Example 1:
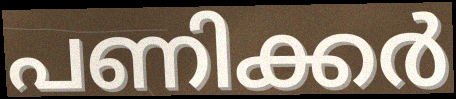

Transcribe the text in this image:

പണിക്കർ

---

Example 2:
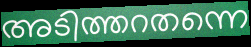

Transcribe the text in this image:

അടിത്തറതന്നെ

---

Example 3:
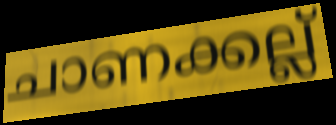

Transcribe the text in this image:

ചാണക്കല്ല്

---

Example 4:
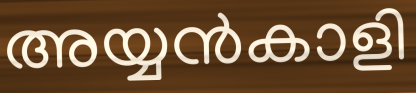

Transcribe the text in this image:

അയ്യൻകാളി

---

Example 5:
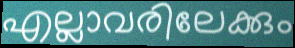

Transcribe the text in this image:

എല്ലാവരിലേക്കും